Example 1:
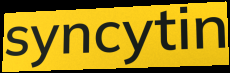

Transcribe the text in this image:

syncytin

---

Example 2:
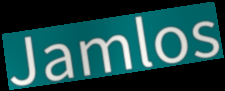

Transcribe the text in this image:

Jamlos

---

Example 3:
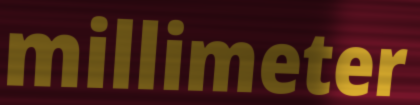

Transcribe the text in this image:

millimeter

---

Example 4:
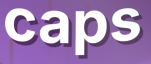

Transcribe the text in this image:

caps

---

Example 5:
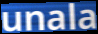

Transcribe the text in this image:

unala